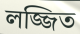
লজ্জিত